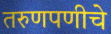
तरुणपणीचे